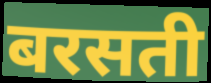
बरसती